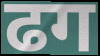
ढग